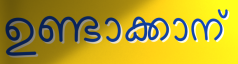
ഉണ്ടാക്കാന്